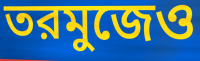
তরমুজেও